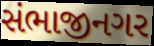
સંભાજીનગર